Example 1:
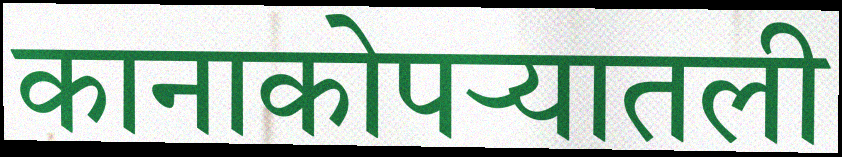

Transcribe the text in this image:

कानाकोपऱ्यातली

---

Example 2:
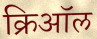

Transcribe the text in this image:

क्रिऑल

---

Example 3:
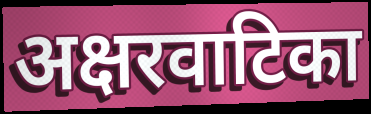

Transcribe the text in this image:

अक्षरवाटिका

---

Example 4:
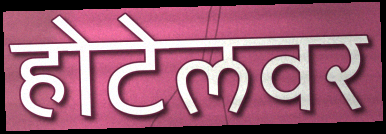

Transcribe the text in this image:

होटेलवर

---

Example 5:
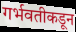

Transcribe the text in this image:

गर्भवतीकडून